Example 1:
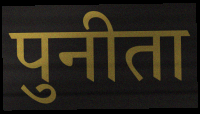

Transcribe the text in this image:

पुनीता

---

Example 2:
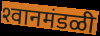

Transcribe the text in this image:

श्वानमंडळी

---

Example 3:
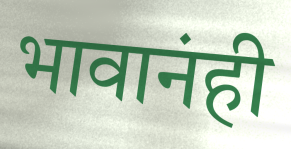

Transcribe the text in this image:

भावानंही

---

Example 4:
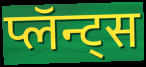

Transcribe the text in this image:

प्लॅन्ट्स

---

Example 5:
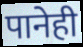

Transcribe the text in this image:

पानेही